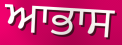
ਆਭਾਸ